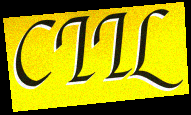
CIIL